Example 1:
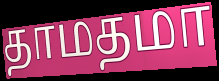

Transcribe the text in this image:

தாமதமா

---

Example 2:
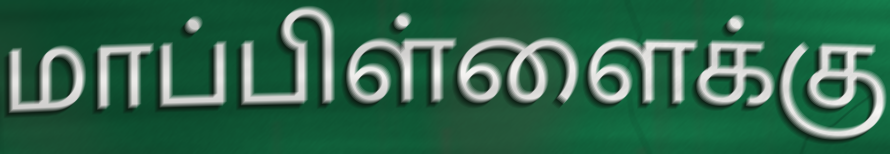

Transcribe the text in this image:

மாப்பிள்ளைக்கு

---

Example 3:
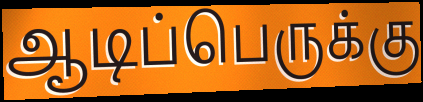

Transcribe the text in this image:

ஆடிப்பெருக்கு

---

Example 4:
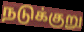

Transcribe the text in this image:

நடுக்குறு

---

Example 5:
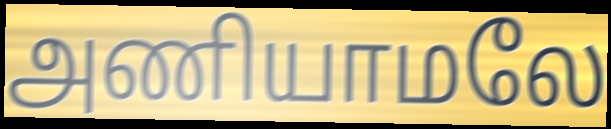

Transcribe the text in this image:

அணியாமலே